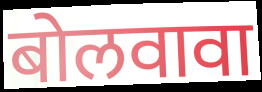
बोलवावा